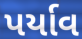
પર્યાવ